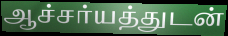
ஆச்சர்யத்துடன்